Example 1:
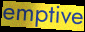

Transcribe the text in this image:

emptive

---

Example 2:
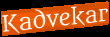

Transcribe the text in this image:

Kadvekar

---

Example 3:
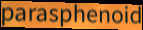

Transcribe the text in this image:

parasphenoid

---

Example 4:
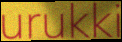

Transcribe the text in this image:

urukki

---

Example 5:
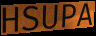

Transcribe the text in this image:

HSUPA